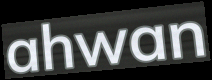
ahwan